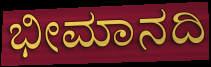
ಭೀಮಾನದಿ